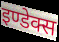
इण्डेक्स